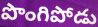
పొంగిపోడు